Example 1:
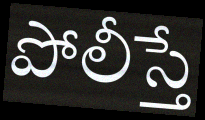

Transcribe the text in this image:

పోలీస్తే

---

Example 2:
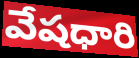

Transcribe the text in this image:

వేషధారి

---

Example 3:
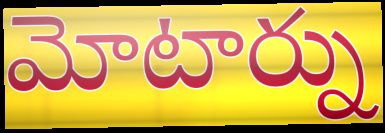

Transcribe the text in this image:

మోటార్ను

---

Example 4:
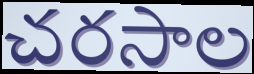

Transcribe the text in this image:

చరసాల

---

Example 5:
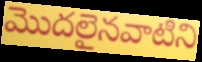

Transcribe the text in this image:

మొదలైనవాటిని